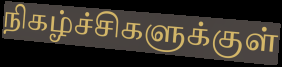
நிகழ்ச்சிகளுக்குள்